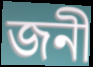
জনী